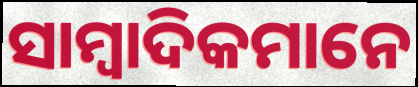
ସାମ୍ବାଦିକମାନେ